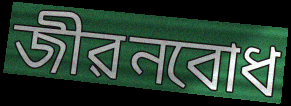
জীৱনবোধ